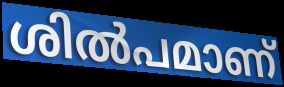
ശിൽപമാണ്